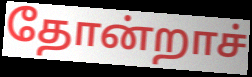
தோன்றாச்